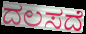
ದಲಸದೆ